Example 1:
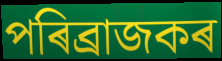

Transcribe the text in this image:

পৰিব্ৰাজকৰ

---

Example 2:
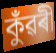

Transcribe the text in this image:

কুঁৱৰী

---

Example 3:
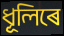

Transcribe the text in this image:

ধূলিৰে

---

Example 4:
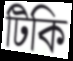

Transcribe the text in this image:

টিকি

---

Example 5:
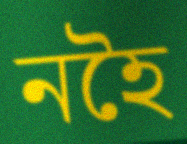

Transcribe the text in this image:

নহৈ